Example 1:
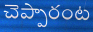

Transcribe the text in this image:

చెప్పారంట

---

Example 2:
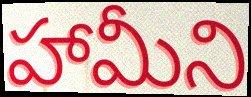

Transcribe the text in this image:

హామీని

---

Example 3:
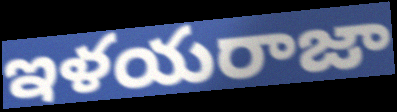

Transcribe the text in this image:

ఇళయరాజా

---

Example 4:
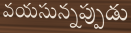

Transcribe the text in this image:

వయసున్నప్పుడు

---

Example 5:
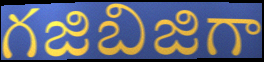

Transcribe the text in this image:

గజిబిజిగా